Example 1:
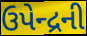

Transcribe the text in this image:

ઉપેન્દ્રની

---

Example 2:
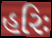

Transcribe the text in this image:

હરિઃ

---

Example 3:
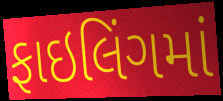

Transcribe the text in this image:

ફાઇલિંગમાં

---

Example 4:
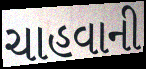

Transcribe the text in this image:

ચાહવાની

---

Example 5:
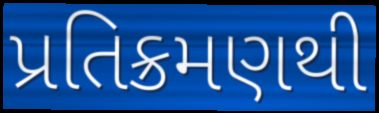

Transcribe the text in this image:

પ્રતિક્રમણથી